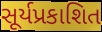
સૂર્યપ્રકાશિત